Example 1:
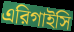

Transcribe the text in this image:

এরিগাইসি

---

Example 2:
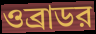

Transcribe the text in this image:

ওব্রাডর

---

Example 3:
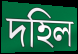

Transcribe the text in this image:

দহিল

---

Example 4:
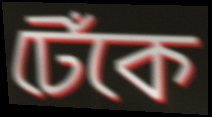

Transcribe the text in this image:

টেঁকে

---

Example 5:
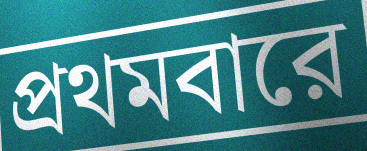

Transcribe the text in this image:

প্রথমবারে